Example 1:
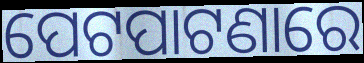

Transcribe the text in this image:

ପେଟପାଟଣାରେ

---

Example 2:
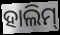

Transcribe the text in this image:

ହାଲିମ୍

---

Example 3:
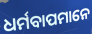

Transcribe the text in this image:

ଧର୍ମବାପମାନେ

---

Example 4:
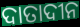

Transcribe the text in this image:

ଦାତାଦୀନ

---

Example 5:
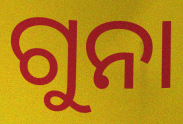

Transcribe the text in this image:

ଗୁନା